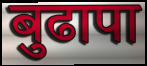
बुढापा